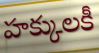
హక్కులకీ